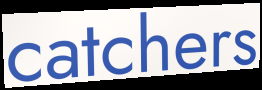
catchers